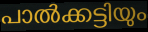
പാൽക്കട്ടിയും